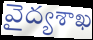
వైద్యశాఖ